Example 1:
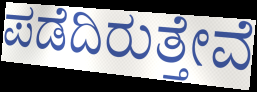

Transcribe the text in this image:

ಪಡೆದಿರುತ್ತೇವೆ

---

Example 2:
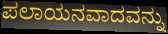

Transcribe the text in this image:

ಪಲಾಯನವಾದವನ್ನು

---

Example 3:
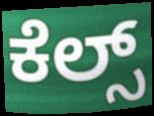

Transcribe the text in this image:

ಕೆಲ್ಸ್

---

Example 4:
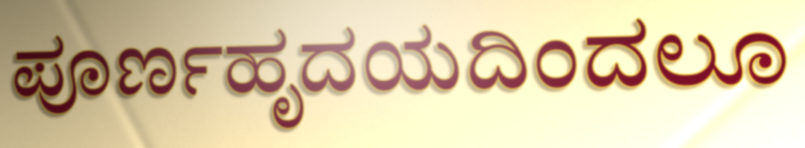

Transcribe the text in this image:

ಪೂರ್ಣಹೃದಯದಿಂದಲೂ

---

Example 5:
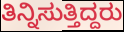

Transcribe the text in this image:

ತಿನ್ನಿಸುತ್ತಿದ್ದರು